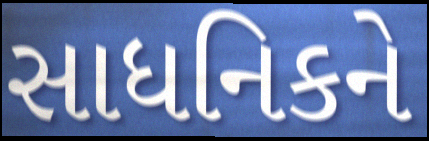
સાધનિકને